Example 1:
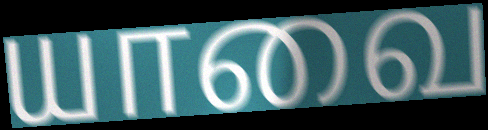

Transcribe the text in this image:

யாவை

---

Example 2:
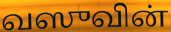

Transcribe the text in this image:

வஸுவின்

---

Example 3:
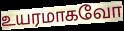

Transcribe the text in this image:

உயரமாகவோ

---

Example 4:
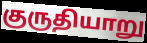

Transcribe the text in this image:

குருதியாறு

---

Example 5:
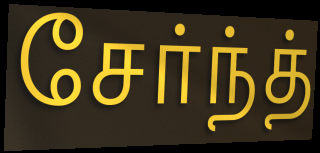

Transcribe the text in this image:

சேர்ந்த்